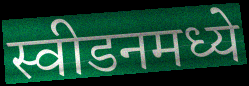
स्वीडनमध्ये